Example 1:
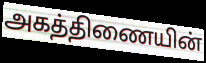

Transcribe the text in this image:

அகத்திணையின்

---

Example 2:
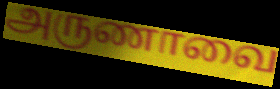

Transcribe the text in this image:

அருணாவை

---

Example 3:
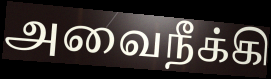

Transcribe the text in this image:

அவைநீக்கி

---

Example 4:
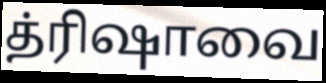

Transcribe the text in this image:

த்ரிஷாவை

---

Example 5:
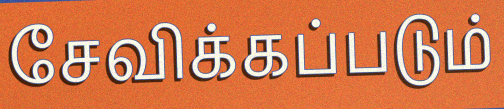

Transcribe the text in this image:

சேவிக்கப்படும்